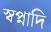
স্বপ্নাদি